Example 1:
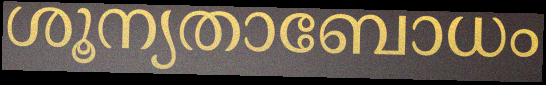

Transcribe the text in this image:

ശൂന്യതാബോധം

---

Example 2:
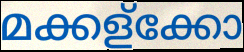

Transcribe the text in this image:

മക്കള്ക്കോ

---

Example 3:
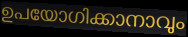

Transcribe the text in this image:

ഉപയോഗിക്കാനാവും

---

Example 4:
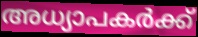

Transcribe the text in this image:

അധ്യാപകർക്ക്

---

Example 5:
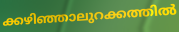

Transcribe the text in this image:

ക്കഴിഞ്ഞാലുറക്കത്തിൽ